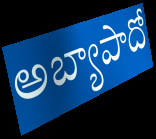
అబ్యాపాదో